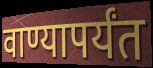
वाण्यापर्यंत